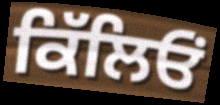
ਕਿੱਲਿਓਂ